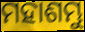
ମହାଶମ୍ଭୁ